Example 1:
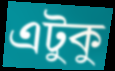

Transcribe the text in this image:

এটুকু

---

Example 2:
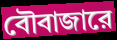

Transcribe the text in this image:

বৌবাজারে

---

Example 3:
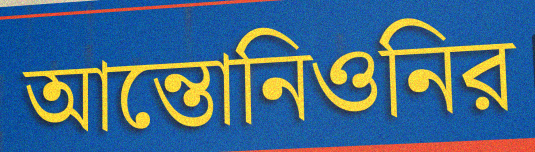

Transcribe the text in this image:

আন্তোনিওনির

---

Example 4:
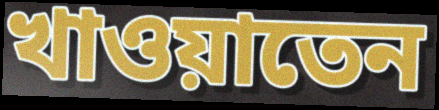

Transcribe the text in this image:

খাওয়াতেন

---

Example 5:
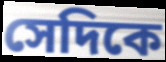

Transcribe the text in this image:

সেদিকে